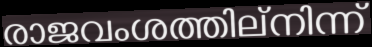
രാജവംശത്തില്നിന്ന്